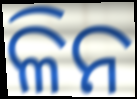
ଳିନ